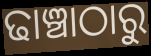
ଢାଞ୍ଚାଠାରୁ